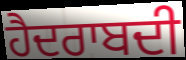
ਹੈਦਰਾਬਦੀ